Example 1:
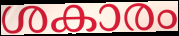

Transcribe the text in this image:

ശകാരം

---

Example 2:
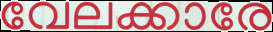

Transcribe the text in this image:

വേലക്കാരേ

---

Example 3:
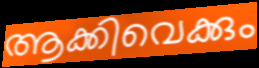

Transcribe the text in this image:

ആക്കിവെക്കും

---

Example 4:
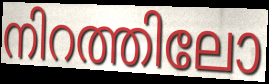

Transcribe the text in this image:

നിറത്തിലോ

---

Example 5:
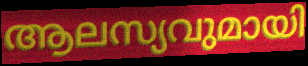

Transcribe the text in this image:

ആലസ്യവുമായി